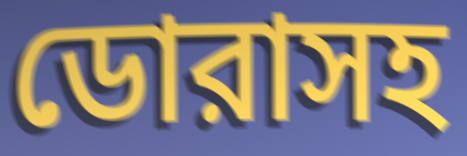
ডোরাসহ